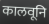
कालवूनि